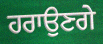
ਹਰਾਉਣਗੇ